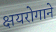
क्षयरोगाने